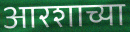
आरशाच्या